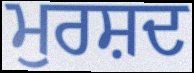
ਮੁਰਸ਼ਦ